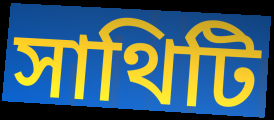
সাথিটি